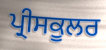
ਪ੍ਰੀਸਕੂਲਰ